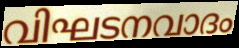
വിഘടനവാദം